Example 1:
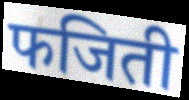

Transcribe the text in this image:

फजिती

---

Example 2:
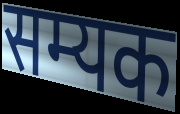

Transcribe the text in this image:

सम्यक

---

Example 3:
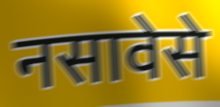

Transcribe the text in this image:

नसावेसे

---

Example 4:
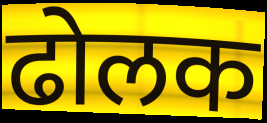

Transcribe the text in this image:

ढोलक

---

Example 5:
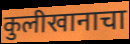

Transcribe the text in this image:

कुलीखानाचा